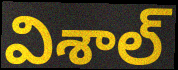
విశాల్